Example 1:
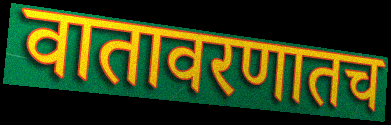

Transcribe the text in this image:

वातावरणातच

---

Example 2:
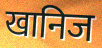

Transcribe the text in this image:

खानिज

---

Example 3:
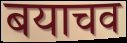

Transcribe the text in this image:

बयाचव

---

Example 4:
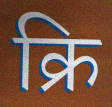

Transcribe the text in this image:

क्रि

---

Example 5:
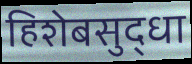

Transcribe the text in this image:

हिशेबसुद्धा